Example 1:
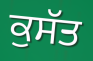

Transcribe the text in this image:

ਕੁਸੱਤ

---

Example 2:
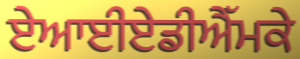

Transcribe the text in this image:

ਏਆਈਏਡੀਐੱਮਕੇ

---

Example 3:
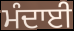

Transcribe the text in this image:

ਮੰਦਾਈ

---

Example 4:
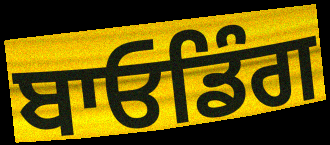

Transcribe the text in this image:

ਬਾਓਡਿੰਗ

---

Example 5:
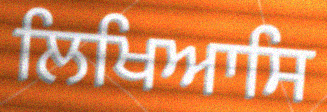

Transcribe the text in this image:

ਲਿਖਿਆਸਿ